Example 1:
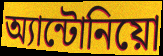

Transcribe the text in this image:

অ্যান্টোনিয়ো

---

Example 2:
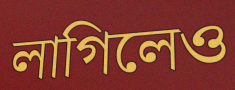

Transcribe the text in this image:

লাগিলেও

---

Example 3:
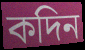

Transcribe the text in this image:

কদিন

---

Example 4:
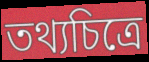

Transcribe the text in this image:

তথ্যচিত্রে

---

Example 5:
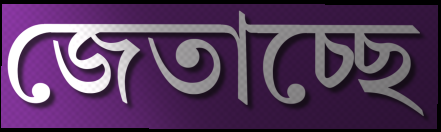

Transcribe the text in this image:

জেতাচ্ছে